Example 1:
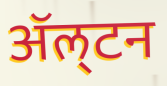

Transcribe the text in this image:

ॲल्टन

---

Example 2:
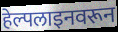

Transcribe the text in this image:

हेल्पलाइनवरून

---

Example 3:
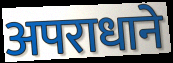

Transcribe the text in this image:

अपराधाने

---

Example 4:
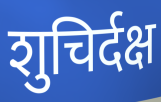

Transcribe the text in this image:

शुचिर्दक्ष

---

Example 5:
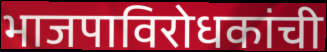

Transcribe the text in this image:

भाजपाविरोधकांची